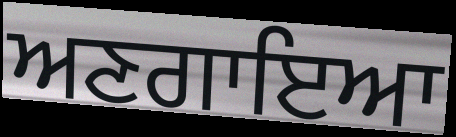
ਅਣਗਾਇਆ